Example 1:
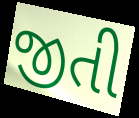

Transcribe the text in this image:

જીતી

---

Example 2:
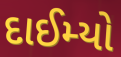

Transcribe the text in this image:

દાઈમ્યો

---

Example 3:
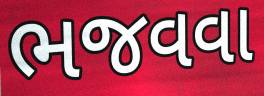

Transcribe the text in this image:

ભજવવા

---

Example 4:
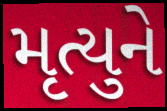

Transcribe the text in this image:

મૃત્યુને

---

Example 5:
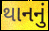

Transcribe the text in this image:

થાનનું